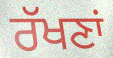
ਰੱਖਣਾਂ